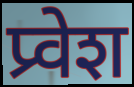
प्र्वेश